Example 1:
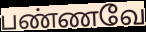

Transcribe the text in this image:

பண்ணவே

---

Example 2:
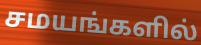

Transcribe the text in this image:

சமயங்களில்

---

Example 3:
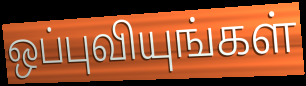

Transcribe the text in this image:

ஒப்புவியுங்கள்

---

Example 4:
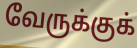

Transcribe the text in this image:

வேருக்குக்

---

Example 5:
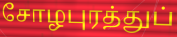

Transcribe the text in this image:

சோழபுரத்துப்